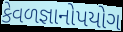
કેવળજ્ઞાનોપયોગ